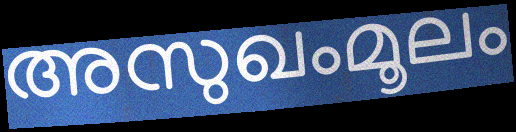
അസുഖംമൂലം